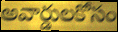
అవార్డులకోసం